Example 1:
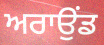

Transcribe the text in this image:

ਅਰਾਉਂਡ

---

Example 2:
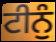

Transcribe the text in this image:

ਟੀਨੁੰ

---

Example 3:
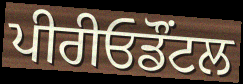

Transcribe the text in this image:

ਪੀਰੀਓਡੌਂਟਲ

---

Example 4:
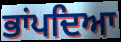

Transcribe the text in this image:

ਭਾਂਪਦਿਆ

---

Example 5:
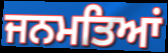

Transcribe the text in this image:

ਜਨਮਤਿਆਂ